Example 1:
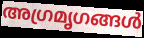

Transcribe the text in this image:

അഗ്രമൃഗങ്ങൾ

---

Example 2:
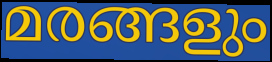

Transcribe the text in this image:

മരങ്ങളും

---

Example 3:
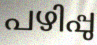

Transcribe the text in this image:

പഴിപ്പു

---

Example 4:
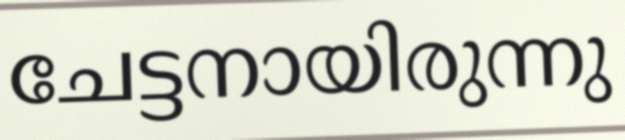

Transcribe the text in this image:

ചേട്ടനായിരുന്നു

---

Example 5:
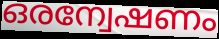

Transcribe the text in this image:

ഒരന്വേഷണം